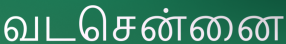
வடசென்னை